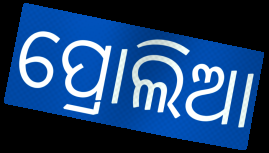
ପ୍ରୋଲିଆ